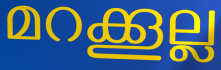
മറക്കൂല്ല